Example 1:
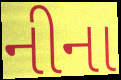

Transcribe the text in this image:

નીના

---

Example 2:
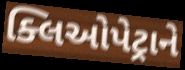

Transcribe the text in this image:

ક્લિઓપેટ્રાને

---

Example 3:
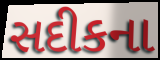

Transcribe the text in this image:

સદીકના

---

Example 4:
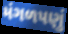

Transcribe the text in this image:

મંગળપણું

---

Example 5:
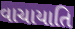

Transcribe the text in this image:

વાચાયાતિ